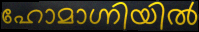
ഹോമാഗ്നിയിൽ